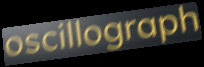
oscillograph